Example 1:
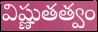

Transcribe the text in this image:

విష్ణుతత్వం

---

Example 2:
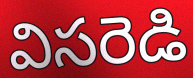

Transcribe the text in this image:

విసరెడి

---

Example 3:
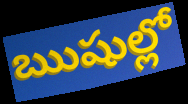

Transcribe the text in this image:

ఋషుల్లో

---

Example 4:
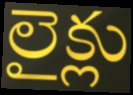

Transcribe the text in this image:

లైక్లు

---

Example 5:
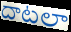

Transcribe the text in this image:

దాటలా